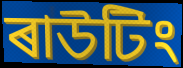
ৰাউটিং